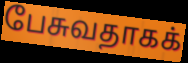
பேசுவதாகக்